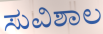
ಸುವಿಶಾಲ